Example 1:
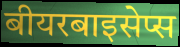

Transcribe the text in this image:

बीयरबाइसेप्स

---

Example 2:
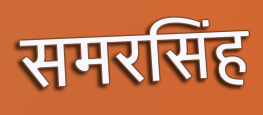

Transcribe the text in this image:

समरसिंह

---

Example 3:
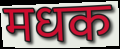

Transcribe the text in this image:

मधक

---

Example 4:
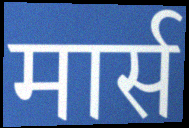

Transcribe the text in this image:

मार्स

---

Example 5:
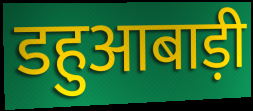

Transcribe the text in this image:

डहुआबाड़ी